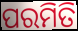
ପରମିତି